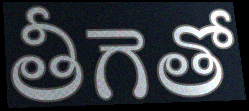
తీగెతో